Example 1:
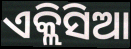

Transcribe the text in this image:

ଏକ୍ଲିସିଆ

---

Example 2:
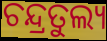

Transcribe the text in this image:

ଚନ୍ଦ୍ରତୁଲ୍ୟ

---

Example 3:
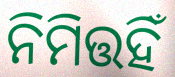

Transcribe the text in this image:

ନିମିତ୍ତହିଁ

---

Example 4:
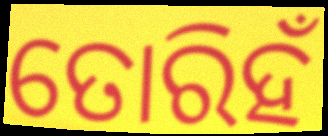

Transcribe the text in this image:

ତୋରିହଁ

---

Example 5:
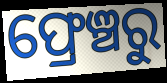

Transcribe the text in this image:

ଫ୍ରେଞ୍ଚରୁ